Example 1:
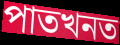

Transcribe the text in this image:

পাতখনত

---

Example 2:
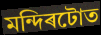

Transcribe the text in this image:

মন্দিৰটোত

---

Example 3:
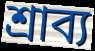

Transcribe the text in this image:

শ্ৰাব্য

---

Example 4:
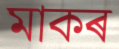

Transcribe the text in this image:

মাকৰ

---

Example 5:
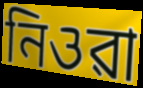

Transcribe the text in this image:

নিওৱা